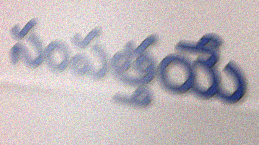
సంపత్తయే